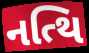
નત્થિ